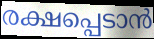
രക്ഷപ്പെടാൻ